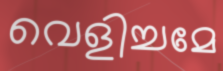
വെളിച്ചമേ